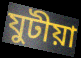
যুটীয়া